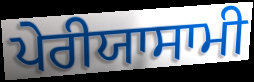
ਪੇਰੀਯਾਸਾਮੀ